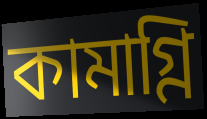
কামাগ্নি